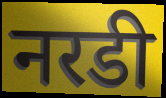
नरडी